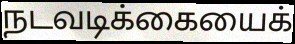
நடவடிக்கையைக்